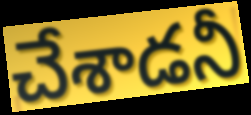
చేశాడనీ